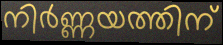
നിർണ്ണയത്തിന്